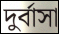
দুর্বাসা